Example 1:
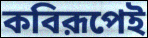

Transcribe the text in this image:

কবিরূপেই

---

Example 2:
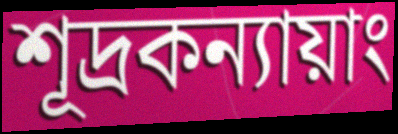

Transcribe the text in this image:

শূদ্রকন্যায়াং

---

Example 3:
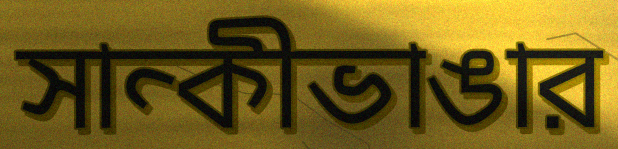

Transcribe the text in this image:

সান্কীভাঙার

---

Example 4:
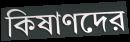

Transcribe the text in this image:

কিষাণদের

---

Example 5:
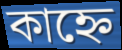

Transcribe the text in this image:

কাহ্নে